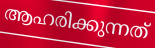
ആഹരിക്കുന്നത്